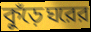
কুঁড়েঘরের